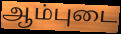
ஆம்புடை